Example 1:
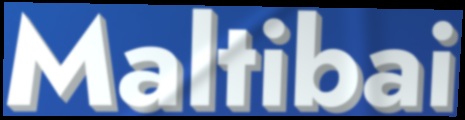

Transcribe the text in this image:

Maltibai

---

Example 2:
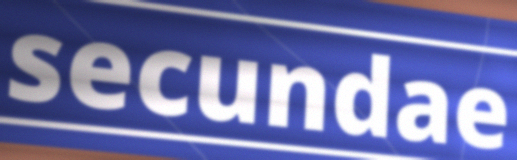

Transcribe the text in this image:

secundae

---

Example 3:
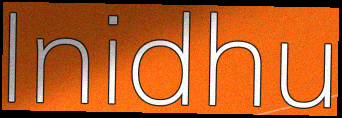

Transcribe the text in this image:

Inidhu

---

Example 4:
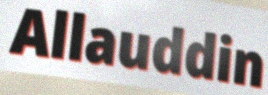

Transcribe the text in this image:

Allauddin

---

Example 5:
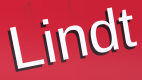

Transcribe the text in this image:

Lindt